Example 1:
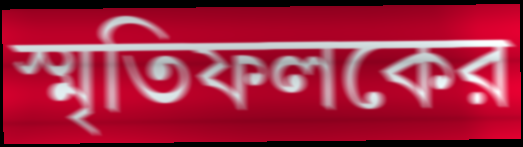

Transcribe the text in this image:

স্মৃতিফলকের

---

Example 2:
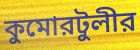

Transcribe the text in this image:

কুমোরটুলীর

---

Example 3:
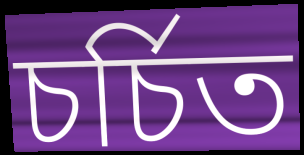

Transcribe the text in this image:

চর্চিত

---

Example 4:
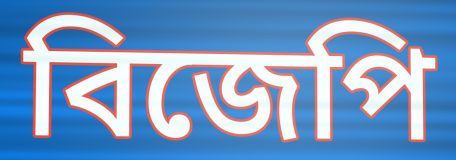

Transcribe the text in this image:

বিজেপি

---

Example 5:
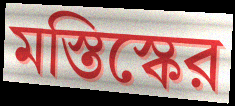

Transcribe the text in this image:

মস্তিস্কের